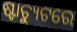
ଷ୍ଟାଚ୍ୟୁଟରେ